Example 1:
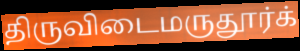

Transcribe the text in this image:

திருவிடைமருதூர்க்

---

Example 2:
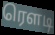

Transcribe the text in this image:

ரெளடி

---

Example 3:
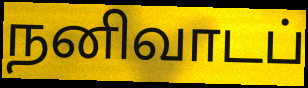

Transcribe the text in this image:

நனிவாடப்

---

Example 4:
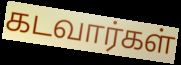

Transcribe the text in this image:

கடவார்கள்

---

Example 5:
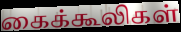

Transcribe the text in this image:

கைக்கூலிகள்